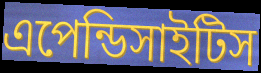
এপেন্ডিসাইটিস